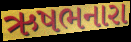
ઋષભનારા